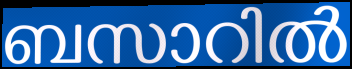
ബസാറിൽ